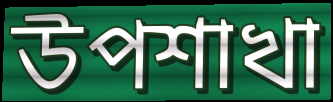
উপশাখা